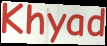
Khyad